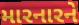
મારનારને